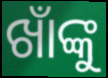
ଖାଁଙ୍କୁ